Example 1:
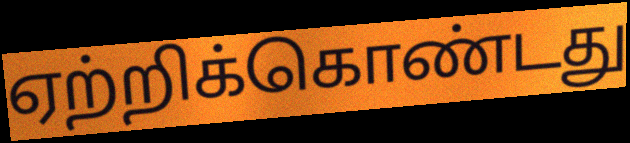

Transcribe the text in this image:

ஏற்றிக்கொண்டது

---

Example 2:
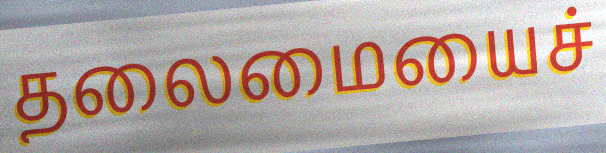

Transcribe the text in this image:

தலைமையைச்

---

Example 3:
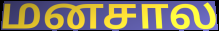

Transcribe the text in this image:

மனசால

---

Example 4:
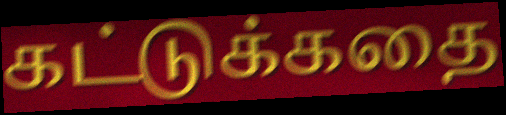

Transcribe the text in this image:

கட்டுக்கதை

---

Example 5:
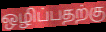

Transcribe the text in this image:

ஒழிப்பதற்கு